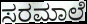
ಸರಮಾಲೆ